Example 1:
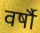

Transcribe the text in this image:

वर्षौ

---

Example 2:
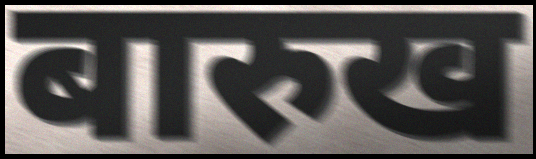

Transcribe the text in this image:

बारुख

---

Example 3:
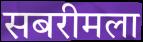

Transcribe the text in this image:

सबरीमला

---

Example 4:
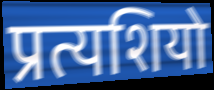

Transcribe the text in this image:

प्रत्यशियो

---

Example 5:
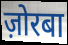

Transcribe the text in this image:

ज़ोरबा